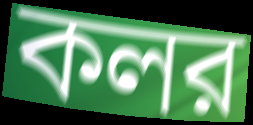
কলর